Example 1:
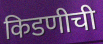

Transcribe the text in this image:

किडणीची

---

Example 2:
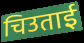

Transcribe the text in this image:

चिउताई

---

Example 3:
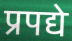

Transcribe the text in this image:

प्रपद्ये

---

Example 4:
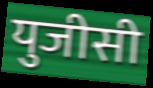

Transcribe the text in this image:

युजीसी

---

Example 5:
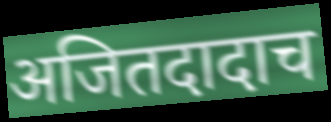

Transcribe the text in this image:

अजितदादाच